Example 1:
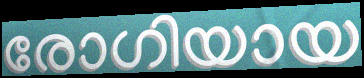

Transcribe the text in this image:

രോഗിയായ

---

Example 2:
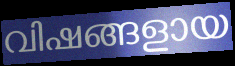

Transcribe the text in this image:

വിഷങ്ങളായ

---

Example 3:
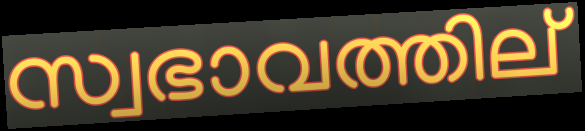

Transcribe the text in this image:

സ്വഭാവത്തില്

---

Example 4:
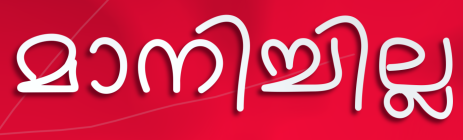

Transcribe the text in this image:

മാനിച്ചില്ല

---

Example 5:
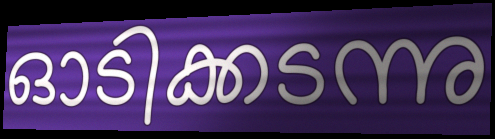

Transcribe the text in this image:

ഓടിക്കടന്നു